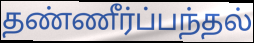
தண்ணீர்ப்பந்தல்